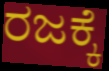
ರಜಕ್ಕೆ